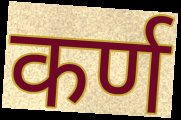
कर्ण